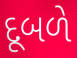
દૂબળે